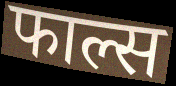
फाल्स